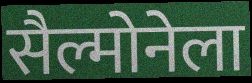
सैल्मोनेला